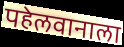
पहेलवानाला